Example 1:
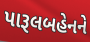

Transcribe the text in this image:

પારૂલબહેનને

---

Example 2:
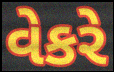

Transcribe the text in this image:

વેકરે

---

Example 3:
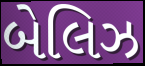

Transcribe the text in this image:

બેલિઝ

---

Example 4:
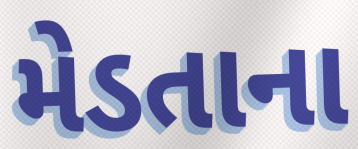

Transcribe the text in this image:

મેડતાના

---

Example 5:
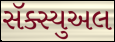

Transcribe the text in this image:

સૅક્સ્યુઅલ